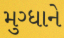
મુગ્ધાને